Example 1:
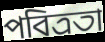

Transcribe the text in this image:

পবিত্ৰতা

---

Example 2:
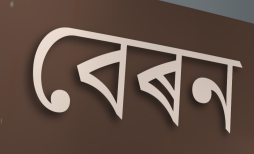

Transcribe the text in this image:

বেৰন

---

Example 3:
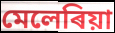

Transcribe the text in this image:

মেলেৰিয়া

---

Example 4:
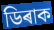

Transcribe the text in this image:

ডিৰাক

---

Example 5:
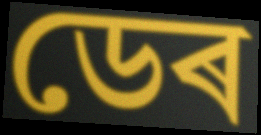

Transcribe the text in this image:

ডেৰ